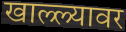
खाल्ल्यावर